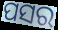
ପସର